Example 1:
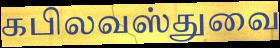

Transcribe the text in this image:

கபிலவஸ்துவை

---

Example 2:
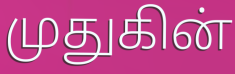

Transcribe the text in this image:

முதுகின்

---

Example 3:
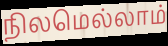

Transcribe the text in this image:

நிலமெல்லாம்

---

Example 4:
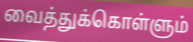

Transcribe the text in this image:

வைத்துக்கொள்ளும்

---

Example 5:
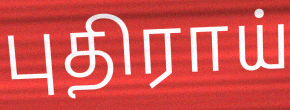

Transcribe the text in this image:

புதிராய்